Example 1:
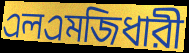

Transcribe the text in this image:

এলএমজিধারী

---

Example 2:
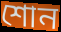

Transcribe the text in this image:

শোন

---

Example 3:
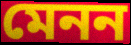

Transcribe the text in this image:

মেনন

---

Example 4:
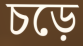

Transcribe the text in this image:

চড়ে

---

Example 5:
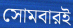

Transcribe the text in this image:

সোমবারই